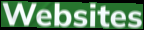
Websites